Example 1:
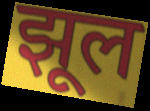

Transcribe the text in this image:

झूल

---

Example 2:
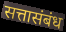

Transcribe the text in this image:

सत्तासंबंध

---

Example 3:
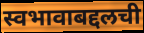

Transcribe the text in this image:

स्वभावाबद्दलची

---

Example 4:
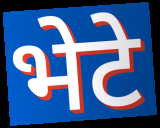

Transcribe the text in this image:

भेटे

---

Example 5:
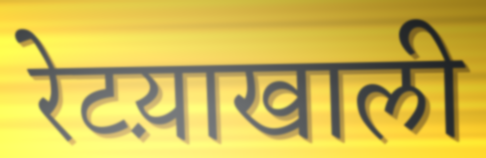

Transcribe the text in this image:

रेटय़ाखाली